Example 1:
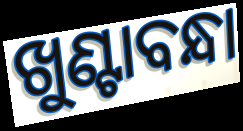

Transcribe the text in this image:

ଖୁଣ୍ଟାବନ୍ଧା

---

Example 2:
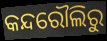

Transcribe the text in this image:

କନ୍ଦରୌଲିରୁ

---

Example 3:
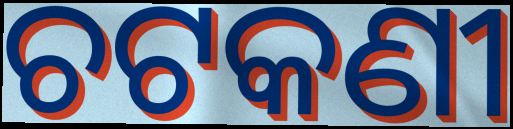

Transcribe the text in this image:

ଚଟକଣୀ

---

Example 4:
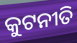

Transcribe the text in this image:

କୁଟନୀତି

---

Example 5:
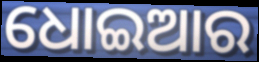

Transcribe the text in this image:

ଧୋଇଆର